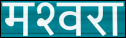
मश्वरा